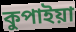
কুপাইয়া